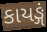
કાયઙ્ગં